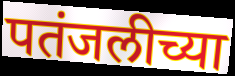
पतंजलीच्या